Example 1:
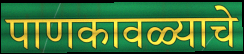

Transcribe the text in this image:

पाणकावळ्याचे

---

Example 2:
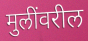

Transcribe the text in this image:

मुलींवरील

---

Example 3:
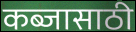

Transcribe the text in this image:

कब्जासाठी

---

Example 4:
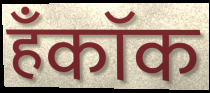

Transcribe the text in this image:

हँकॉक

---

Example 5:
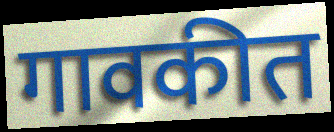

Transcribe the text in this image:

गावकीत